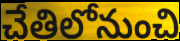
చేతిలోనుంచి